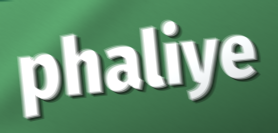
phaliye